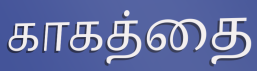
காகத்தை